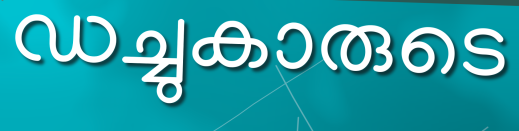
ഡച്ചുകാരുടെ